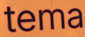
tema